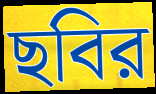
ছবির